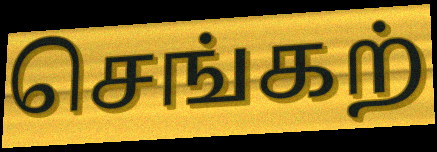
செங்கற்